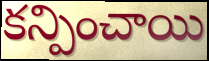
కన్పించాయి